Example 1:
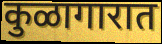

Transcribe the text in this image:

कुळागारात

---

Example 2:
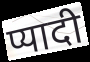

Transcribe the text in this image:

प्यादी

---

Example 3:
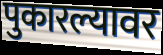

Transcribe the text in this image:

पुकारल्यावर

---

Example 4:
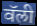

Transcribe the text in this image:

वॅली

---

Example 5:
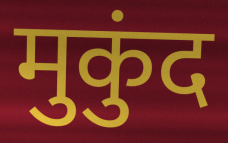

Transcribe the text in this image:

मुकुंद